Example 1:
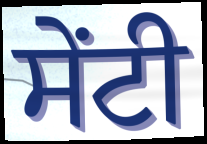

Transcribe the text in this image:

ਸੇਂਟੀ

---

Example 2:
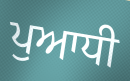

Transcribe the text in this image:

ਪੁਆਧੀ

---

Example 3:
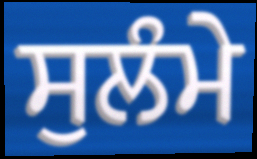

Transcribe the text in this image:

ਸੁਲੰਮੇ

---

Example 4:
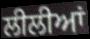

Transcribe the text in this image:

ਲੀਲੀਆਂ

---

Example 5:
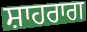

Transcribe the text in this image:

ਸ਼ਾਹਰਾਗ